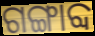
ଗଙ୍ଗାବ୍ଦ